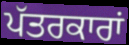
ਪੱਤਰਕਾਰਾਂ